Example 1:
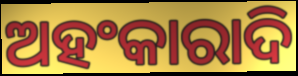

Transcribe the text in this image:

ଅହଂକାରାଦି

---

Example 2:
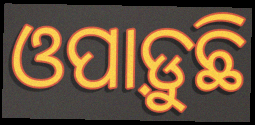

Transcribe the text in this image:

ଓପାଡ଼ୁଛି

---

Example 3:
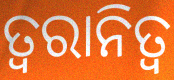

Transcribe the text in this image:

ତ୍ୱରାନିତ୍ଵ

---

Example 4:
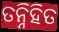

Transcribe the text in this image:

ତନ୍ନିହିତ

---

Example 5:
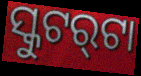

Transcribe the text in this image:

ସ୍କୁଟର୍‌ଟା